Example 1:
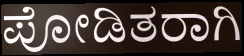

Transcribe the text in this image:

ಪೋಡಿತರಾಗಿ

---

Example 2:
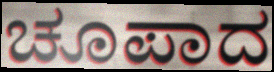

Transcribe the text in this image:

ಚೂಪಾದ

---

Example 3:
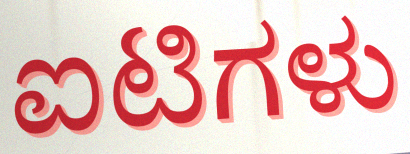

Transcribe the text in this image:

ಐಟಿಗಳು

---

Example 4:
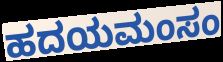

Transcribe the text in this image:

ಹದಯಮಂಸಂ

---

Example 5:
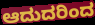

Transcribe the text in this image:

ಆದುದರಿಂದ